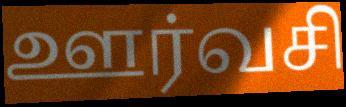
ஊர்வசி